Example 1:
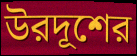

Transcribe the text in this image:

উরদূশের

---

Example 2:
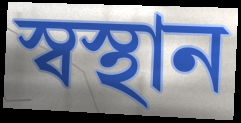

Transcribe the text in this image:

স্বস্থান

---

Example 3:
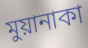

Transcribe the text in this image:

মুয়ানাকা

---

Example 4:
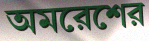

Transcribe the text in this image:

অমরেশের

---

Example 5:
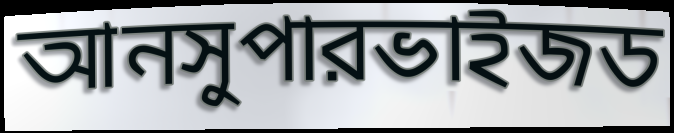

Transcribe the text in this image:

আনসুপারভাইজড